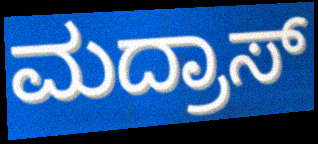
ಮದ್ರಾಸ್